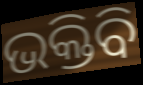
ଭକ୍ତିବି